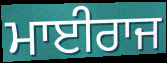
ਮਾਈਰਾਜ